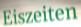
Eiszeiten